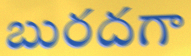
బురదగా